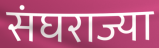
संघराज्या